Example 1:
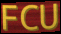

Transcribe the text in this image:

FCU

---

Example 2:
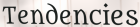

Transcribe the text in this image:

Tendencies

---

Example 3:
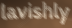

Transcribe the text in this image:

lavishly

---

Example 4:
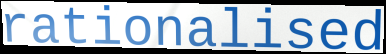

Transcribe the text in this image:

rationalised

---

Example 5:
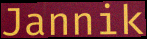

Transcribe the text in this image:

Jannik